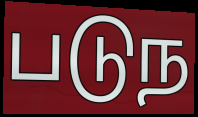
படுந